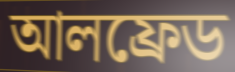
আলফ্রেড